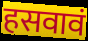
हसवावं